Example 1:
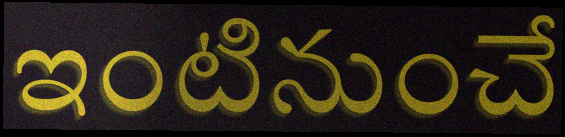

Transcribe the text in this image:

ఇంటినుంచే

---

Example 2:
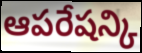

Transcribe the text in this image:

ఆపరేషన్కి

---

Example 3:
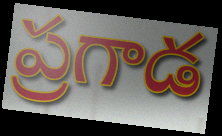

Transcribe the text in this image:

ప్రగాడ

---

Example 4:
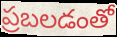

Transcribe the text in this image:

ప్రబలడంతో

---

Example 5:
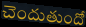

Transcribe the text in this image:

చెందుతుందో